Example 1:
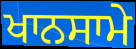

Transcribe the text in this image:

ਖਾਨਸਾਮੇ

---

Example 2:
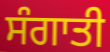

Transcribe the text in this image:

ਸੰਗਾਤੀ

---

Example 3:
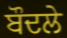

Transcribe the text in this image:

ਬੌਦਲੇ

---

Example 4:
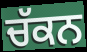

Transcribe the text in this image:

ਚੱਕਨ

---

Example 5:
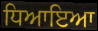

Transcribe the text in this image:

ਧਿਆਇਆ